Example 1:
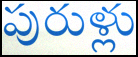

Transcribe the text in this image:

పురుళ్లు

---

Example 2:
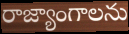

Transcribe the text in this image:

రాజ్యాంగాలను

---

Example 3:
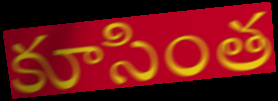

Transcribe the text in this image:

కూసింత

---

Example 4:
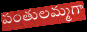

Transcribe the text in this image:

పంతులమ్మగా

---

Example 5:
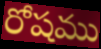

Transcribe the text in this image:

రోషము